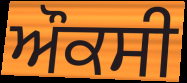
ਔਕਸੀ